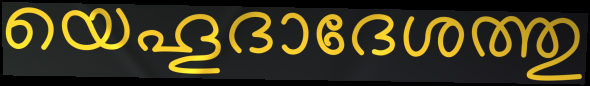
യെഹൂദാദേശത്തു